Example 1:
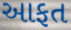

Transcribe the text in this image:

આફત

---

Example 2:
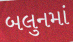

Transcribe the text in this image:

બલુનમાં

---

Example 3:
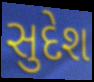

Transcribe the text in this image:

સુદેશ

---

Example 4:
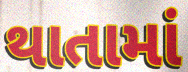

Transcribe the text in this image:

થાતામાં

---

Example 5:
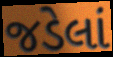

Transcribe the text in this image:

જડેલાં